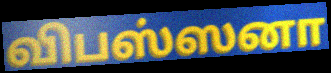
விபஸ்ஸனா